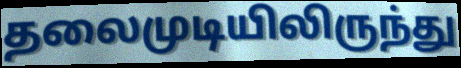
தலைமுடியிலிருந்து